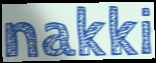
nakki